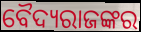
ବୈଦ୍ୟରାଜଙ୍କର